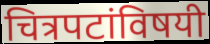
चित्रपटांविषयी